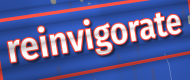
reinvigorate